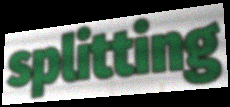
splitting